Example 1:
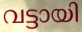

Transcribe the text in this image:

വട്ടായി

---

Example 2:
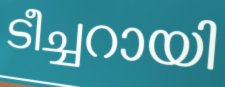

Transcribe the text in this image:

ടീച്ചറായി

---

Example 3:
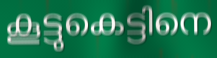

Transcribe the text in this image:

കൂട്ടുകെട്ടിനെ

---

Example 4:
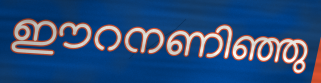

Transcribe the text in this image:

ഈറനണിഞ്ഞു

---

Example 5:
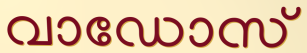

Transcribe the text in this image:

വാഡോസ്